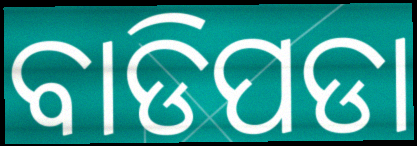
ବାଡିପଡା